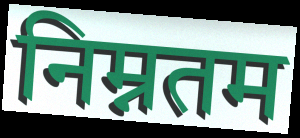
निम्नतम